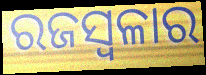
ରଜସ୍ୱଳାର